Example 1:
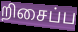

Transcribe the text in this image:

றிசைப்ப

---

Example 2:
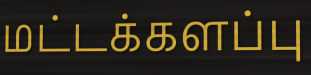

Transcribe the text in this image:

மட்டக்களப்பு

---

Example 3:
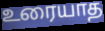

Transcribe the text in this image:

உரையாத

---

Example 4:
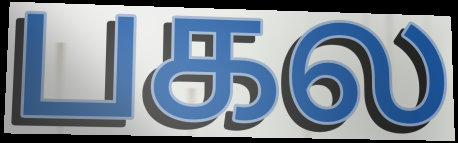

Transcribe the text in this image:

பகல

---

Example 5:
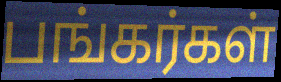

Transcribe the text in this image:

பங்கர்கள்